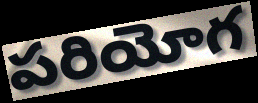
పరియోగ